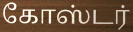
கோஸ்டர்